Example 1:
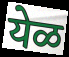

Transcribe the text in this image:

येळ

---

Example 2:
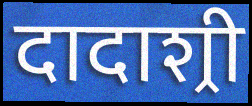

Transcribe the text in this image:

दादाश्री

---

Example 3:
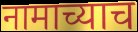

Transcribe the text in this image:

नामाच्याच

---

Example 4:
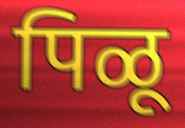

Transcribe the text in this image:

पिळू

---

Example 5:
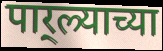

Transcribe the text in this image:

पार्ल्याच्या